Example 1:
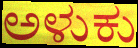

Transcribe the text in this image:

ಅಳುಕು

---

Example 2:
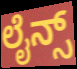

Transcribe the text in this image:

ಲೈನ್ಸ್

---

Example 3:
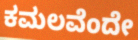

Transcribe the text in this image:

ಕಮಲವೆಂದೇ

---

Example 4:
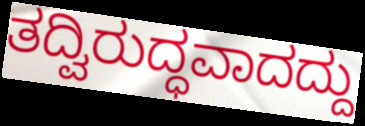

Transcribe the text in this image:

ತದ್ವಿರುದ್ಧವಾದದ್ದು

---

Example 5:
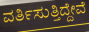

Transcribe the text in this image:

ವರ್ತಿಸುತ್ತಿದ್ದೇವೆ